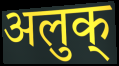
अलुक्